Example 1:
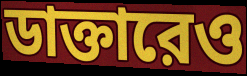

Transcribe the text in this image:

ডাক্তারেও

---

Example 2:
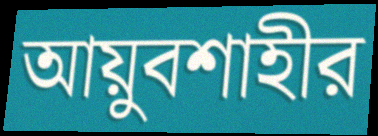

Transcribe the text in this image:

আয়ুবশাহীর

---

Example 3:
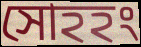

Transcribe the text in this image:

সোহহং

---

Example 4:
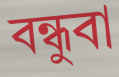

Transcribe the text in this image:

বন্ধুবা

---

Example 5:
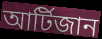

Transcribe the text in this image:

আর্টিজান